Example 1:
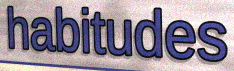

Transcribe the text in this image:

habitudes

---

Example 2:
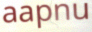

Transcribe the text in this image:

aapnu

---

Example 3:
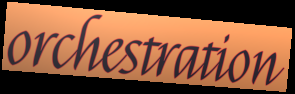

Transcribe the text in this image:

orchestration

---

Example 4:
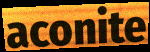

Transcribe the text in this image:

aconite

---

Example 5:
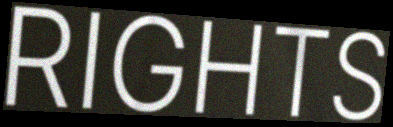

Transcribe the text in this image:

RIGHTS